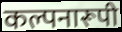
कल्पनारूपी